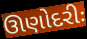
ઊણોદરીઃ